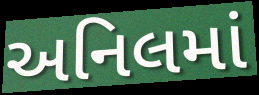
અનિલમાં